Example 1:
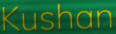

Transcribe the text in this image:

Kushan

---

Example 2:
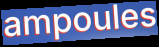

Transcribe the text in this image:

ampoules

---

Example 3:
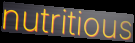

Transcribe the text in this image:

nutritious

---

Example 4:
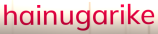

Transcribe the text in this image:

hainugarike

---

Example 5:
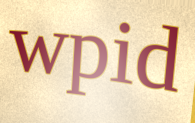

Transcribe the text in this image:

wpid